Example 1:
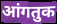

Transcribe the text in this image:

आंगतुक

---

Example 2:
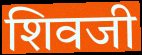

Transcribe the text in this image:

शिवजी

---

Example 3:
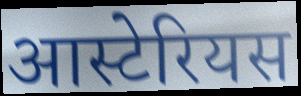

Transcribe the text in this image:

आस्टेरियस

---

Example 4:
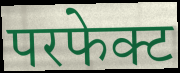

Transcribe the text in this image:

परफेक्ट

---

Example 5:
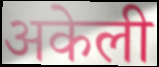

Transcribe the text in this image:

अकेली